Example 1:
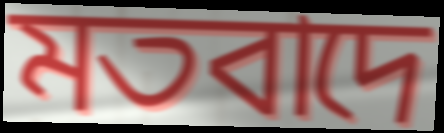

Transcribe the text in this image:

মতবাদে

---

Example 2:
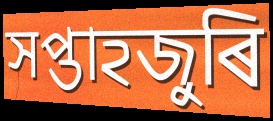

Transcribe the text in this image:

সপ্তাহজুৰি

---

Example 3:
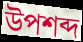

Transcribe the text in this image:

উপশব্দ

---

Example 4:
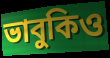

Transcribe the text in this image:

ভাবুকিও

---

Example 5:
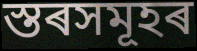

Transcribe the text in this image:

স্তৰসমূহৰ